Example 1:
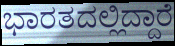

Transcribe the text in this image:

ಭಾರತದಲ್ಲಿದ್ದಾರೆ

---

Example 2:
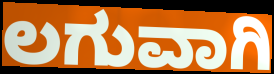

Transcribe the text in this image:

ಲಗುವಾಗಿ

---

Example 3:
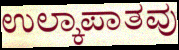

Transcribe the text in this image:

ಉಲ್ಕಾಪಾತವು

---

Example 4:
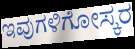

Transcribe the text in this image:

ಇವುಗಳಿಗೋಸ್ಕರ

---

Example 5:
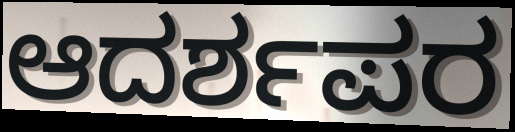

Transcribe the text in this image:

ಆದರ್ಶಪರ